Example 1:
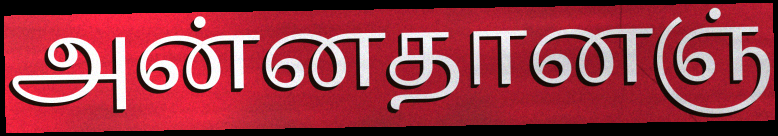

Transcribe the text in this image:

அன்னதானஞ்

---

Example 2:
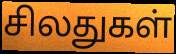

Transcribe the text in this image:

சிலதுகள்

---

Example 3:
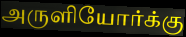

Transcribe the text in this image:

அருளியோர்க்கு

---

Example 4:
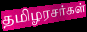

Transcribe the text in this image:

தமிழரசர்கள்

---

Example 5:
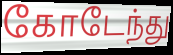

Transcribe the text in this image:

கோடேந்து